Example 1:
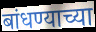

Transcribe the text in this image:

बांधण्याच्या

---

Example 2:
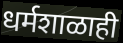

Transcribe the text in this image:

धर्मशाळाही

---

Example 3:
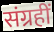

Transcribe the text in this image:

संग्रहीं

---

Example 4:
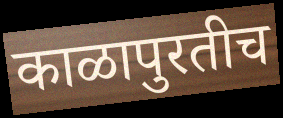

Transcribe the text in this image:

काळापुरतीच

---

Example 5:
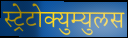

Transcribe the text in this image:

स्ट्रेटोक्युम्युलस